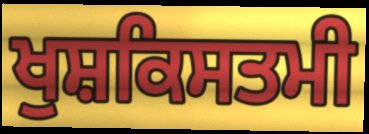
ਖੁਸ਼ਕਿਸਤਮੀ